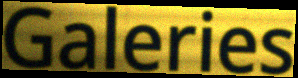
Galeries